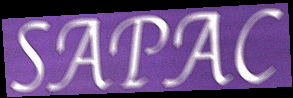
SAPAC